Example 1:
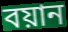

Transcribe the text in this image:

বয়ান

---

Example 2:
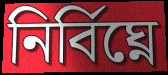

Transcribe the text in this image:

নির্বিঘ্নে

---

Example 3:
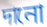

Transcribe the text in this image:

দানো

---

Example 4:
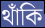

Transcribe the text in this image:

থাঁকি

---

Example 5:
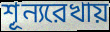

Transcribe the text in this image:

শূন্যরেখায়